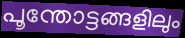
പൂന്തോട്ടങ്ങളിലും